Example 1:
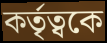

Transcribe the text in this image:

কর্তৃত্বকে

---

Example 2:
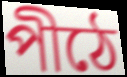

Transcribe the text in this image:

পীঠে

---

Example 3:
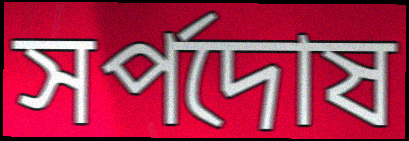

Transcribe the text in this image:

সর্পদোষ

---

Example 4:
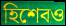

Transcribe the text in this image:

হিশেবও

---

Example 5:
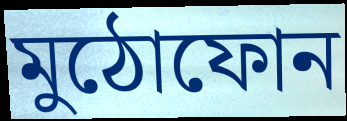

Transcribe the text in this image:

মুঠোফোন